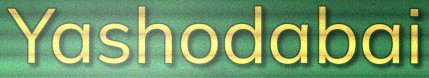
Yashodabai